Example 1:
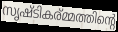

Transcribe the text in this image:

സൃഷ്ടികര്മ്മത്തിന്റെ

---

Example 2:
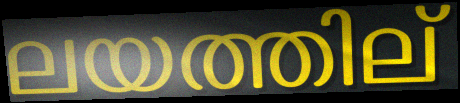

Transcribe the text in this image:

ലയത്തില്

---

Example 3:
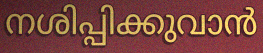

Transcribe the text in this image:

നശിപ്പിക്കുവാൻ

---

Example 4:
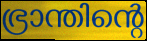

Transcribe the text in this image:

ഭ്രാന്തിന്റെ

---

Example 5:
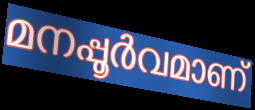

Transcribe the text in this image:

മനപ്പൂർവമാണ്